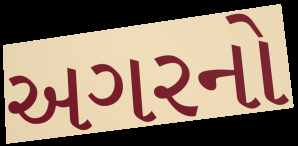
અગરનો